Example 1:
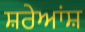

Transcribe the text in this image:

ਸ਼ਰੇਆਂਸ਼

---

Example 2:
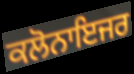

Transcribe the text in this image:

ਕਲੋਨਾਇਜਰ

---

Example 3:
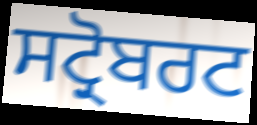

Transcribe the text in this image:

ਸਟ੍ਰੋਬਰਟ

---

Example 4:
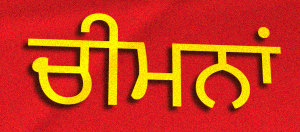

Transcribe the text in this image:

ਚੀਮਨਾਂ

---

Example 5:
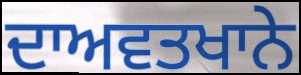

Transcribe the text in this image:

ਦਾਅਵਤਖਾਨੇ